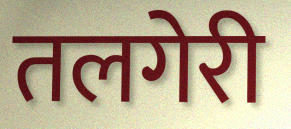
तलगेरी